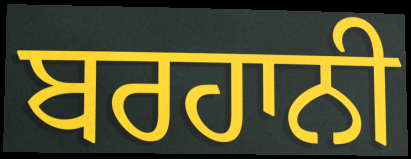
ਬਰਹਾਨੀ